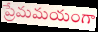
ప్రేమమయంగా